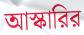
আস্কারির